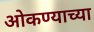
ओकण्याच्या